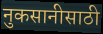
नुकसानीसाठी